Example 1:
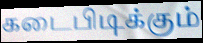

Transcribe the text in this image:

கடைபிடிக்கும்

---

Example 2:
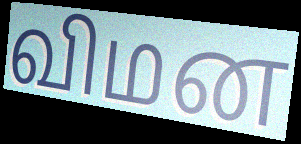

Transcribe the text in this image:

விமன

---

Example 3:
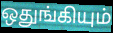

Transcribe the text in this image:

ஒதுங்கியும்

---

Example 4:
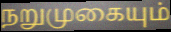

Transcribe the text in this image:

நறுமுகையும்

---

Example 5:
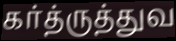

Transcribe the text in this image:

கர்த்ருத்துவ